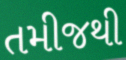
તમીજથી